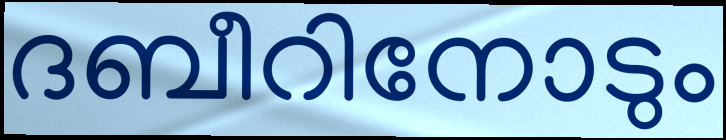
ദബീറിനോടും